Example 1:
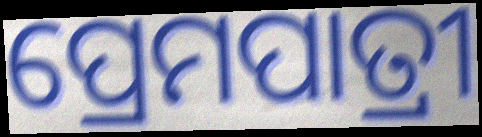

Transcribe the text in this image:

ପ୍ରେମପାତ୍ରୀ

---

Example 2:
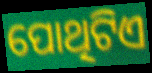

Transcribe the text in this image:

ପୋଥିଟିଏ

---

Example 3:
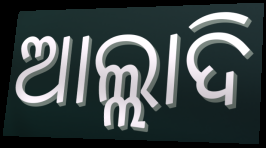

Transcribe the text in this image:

ଆଲ୍ଲାଦି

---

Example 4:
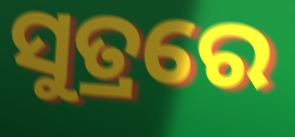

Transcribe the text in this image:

ସୁତ୍ରରେ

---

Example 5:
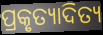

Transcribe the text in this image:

ପ୍ରକୃତ୍ୟାଦିତ୍ୟ